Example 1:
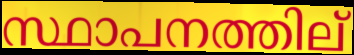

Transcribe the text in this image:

സ്ഥാപനത്തില്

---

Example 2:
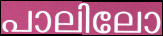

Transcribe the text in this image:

പാലിലോ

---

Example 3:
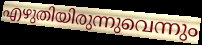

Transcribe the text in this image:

എഴുതിയിരുന്നുവെന്നും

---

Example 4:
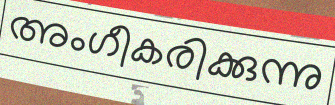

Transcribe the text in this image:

അംഗീകരിക്കുന്നു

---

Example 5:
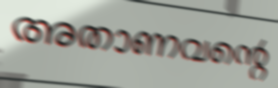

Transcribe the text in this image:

അതാണവന്റെ